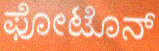
ಫೋಟೊನ್